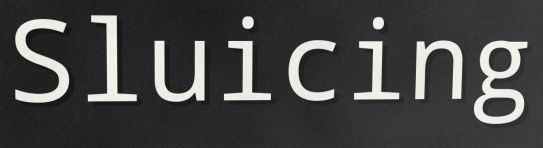
Sluicing